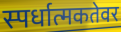
स्पर्धात्मकतेवर